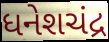
ધનેશચંદ્ર